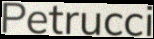
Petrucci